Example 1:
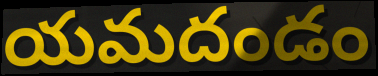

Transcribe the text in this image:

యమదండం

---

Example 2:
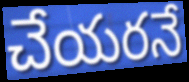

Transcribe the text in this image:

చేయరనే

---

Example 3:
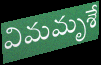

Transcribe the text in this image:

విమమృశే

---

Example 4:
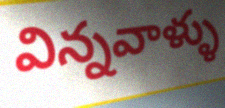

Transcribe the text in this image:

విన్నవాళ్ళు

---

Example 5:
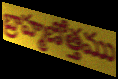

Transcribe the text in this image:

బ్రాహ్మణోత్తము